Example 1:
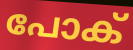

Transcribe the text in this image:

പോക്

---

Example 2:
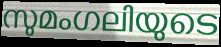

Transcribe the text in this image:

സുമംഗലിയുടെ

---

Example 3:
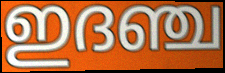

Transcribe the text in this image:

ഇദഞ്ച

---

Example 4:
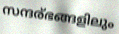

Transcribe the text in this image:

സന്ദര്ഭങ്ങളിലും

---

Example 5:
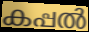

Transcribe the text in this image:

കപ്പൽ